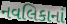
નવલિકાનાં